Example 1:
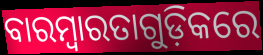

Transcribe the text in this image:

ବାରମ୍ବାରତାଗୁଡ଼ିକରେ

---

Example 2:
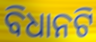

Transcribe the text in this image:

ବିଧାନଟି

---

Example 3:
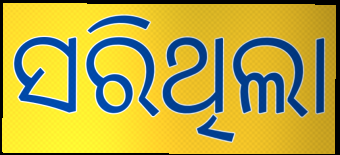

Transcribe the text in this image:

ସରିଥିଲା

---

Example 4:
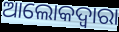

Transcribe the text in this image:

ଆଲୋକଦ୍ୱାରା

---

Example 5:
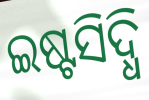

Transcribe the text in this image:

ଇଷ୍ଟସିଦ୍ଧି